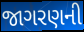
જાગરણની